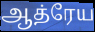
ஆத்ரேய